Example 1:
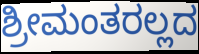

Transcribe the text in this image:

ಶ್ರೀಮಂತರಲ್ಲದ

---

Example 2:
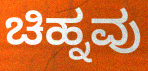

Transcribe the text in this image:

ಚಿಹ್ನವು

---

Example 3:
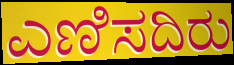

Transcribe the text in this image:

ಎಣಿಸದಿರು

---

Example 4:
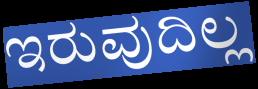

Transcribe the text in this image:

ಇರುವುದಿಲ್ಲ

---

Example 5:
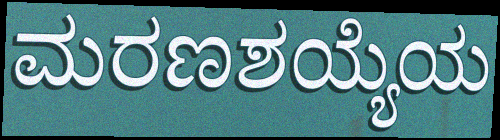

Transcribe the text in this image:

ಮರಣಶಯ್ಯೆಯ